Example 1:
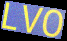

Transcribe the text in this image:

LVO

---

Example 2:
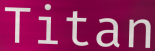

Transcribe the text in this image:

Titan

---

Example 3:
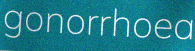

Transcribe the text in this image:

gonorrhoea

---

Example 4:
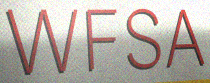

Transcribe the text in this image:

WFSA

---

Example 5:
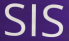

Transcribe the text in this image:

SIS